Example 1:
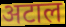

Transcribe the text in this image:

अटाल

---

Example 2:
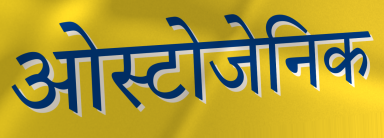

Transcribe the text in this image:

ओस्टोजेनिक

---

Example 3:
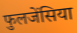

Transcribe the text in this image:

फुलजेंसिया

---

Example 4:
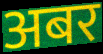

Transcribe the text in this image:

अबर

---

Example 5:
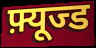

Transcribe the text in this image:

फ़्यूज्ड